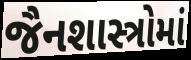
જૈનશાસ્ત્રોમાં